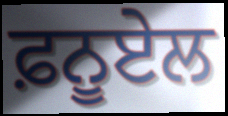
ਫ਼ਨੂਏਲ